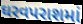
ઘરવપરાશમાં